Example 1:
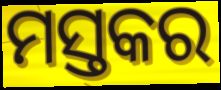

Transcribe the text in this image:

ମସ୍ତକର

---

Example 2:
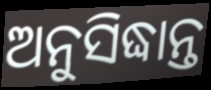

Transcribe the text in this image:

ଅନୁସିଦ୍ଧାନ୍ତ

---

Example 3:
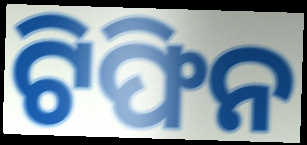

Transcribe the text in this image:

ଟିଫିନ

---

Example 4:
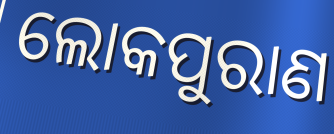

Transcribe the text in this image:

ଲୋକପୁରାଣ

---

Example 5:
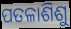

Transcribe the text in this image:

ପତଳାଶିଶୁ